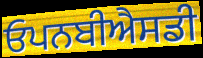
ਓਪਨਬੀਐਸਡੀ